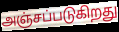
அஞ்சப்படுகிறது